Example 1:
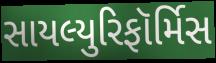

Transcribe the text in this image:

સાયલ્યુરિફૉર્મિસ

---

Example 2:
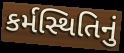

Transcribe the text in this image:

કર્મસ્થિતિનું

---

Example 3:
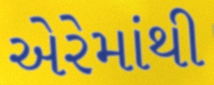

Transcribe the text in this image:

એરેમાંથી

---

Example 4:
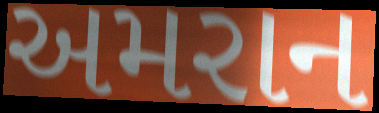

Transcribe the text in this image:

અમરાન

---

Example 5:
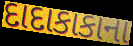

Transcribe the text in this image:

દાદાકાકાના